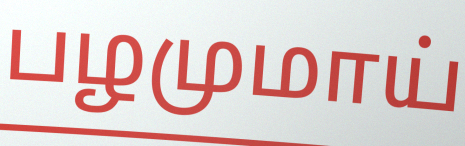
பழமுமாய்